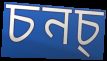
চনচ্